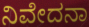
ನಿವೇದನಾ